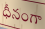
ధీనంగా